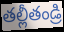
తల్లీతండ్రి